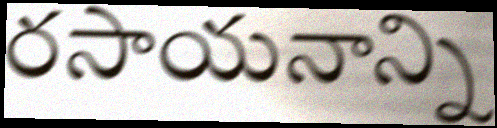
రసాయనాన్ని